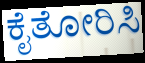
ಕೈತೋರಿಸಿ